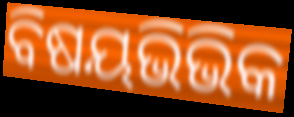
ବିଷୟଭିଭିକ